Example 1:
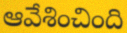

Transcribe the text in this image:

ఆవేశించింది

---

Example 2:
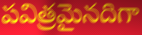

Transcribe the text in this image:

పవిత్రమైనదిగా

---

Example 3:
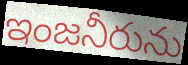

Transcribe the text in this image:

ఇంజనీరును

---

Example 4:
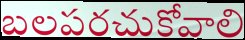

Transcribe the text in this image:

బలపరచుకోవాలి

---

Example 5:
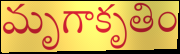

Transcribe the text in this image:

మృగాకృతిం